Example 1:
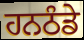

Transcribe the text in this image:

ਹਨਠੰਡੇ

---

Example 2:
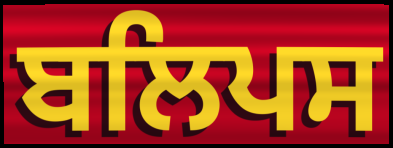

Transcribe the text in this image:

ਬਲਿਪਸ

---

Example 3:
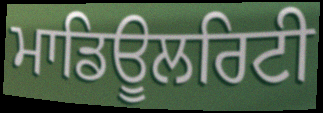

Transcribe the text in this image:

ਮਾਡਿਊਲਰਿਟੀ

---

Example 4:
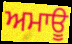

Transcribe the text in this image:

ਅਮਾਊ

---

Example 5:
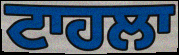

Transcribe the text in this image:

ਟਾਹਲਾ